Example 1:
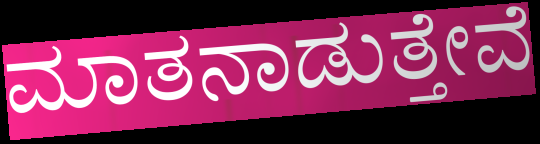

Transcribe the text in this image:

ಮಾತನಾಡುತ್ತೇವೆ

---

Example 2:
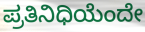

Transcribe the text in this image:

ಪ್ರತಿನಿಧಿಯೆಂದೇ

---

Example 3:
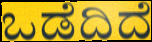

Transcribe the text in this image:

ಒಡೆದಿದೆ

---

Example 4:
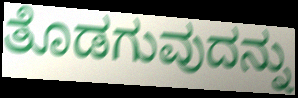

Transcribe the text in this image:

ತೊಡಗುವುದನ್ನು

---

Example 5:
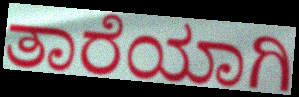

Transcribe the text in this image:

ತಾರೆಯಾಗಿ